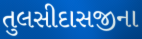
તુલસીદાસજીના